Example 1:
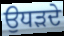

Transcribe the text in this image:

ਉਧੜਦੇ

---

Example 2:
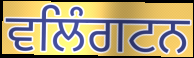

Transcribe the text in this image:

ਵਲਿੰਗਟਨ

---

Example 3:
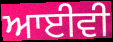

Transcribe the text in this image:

ਆਈਵੀ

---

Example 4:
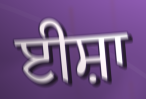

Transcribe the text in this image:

ਈਸ਼ਾ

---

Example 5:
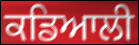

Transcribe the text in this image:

ਕਡਿਆਲੀ